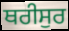
ਥਰੀਸੁਰ